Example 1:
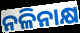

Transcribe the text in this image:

ନଳିନାକ୍ଷ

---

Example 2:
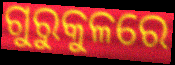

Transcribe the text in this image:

ଗୁରୁକୁଳରେ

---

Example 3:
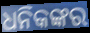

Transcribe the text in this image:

ଧନିକଙ୍କର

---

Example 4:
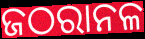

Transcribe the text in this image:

ଜଠରାନଳ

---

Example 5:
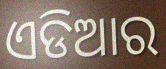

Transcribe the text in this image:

ଏଡିଆର